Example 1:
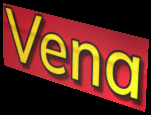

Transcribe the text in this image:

Vena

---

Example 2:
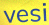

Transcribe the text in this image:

vesi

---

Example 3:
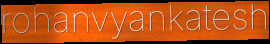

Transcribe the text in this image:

rohanvyankatesh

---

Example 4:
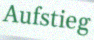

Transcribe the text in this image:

Aufstieg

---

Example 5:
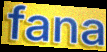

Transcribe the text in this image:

fana